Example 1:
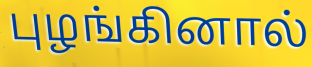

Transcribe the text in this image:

புழங்கினால்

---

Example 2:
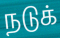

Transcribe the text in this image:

நடுக்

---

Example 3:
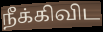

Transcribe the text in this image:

நீக்கிவிட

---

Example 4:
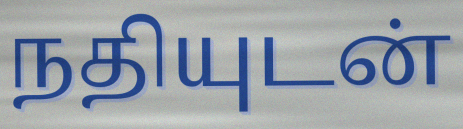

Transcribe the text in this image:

நதியுடன்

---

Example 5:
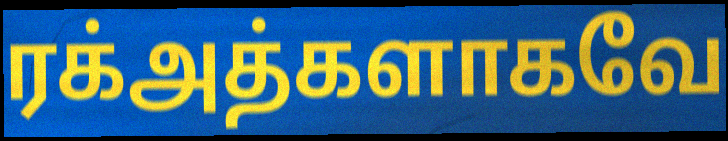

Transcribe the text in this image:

ரக்அத்களாகவே